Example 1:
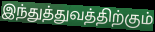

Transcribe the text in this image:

இந்துத்துவத்திற்கும்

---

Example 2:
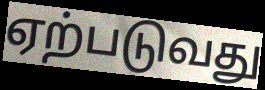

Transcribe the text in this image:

ஏற்படுவது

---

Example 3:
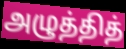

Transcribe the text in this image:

அழுத்தித்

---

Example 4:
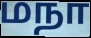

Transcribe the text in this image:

மநா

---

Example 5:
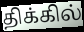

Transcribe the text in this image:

திக்கில்